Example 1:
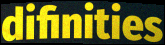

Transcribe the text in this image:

difinities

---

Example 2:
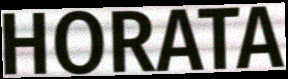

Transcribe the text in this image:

HORATA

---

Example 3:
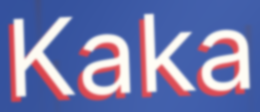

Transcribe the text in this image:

Kaka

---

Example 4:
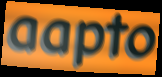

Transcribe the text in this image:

aapto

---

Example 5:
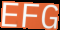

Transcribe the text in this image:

EFG